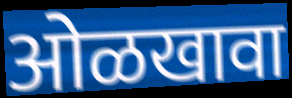
ओळखावा